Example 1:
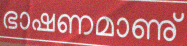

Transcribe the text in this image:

ഭാഷണമാണു്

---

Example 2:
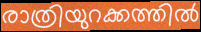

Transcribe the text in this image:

രാത്രിയുറക്കത്തിൽ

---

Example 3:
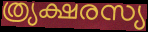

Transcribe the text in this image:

ത്ര്യക്ഷരസ്യ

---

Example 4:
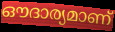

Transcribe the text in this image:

ഔദാര്യമാണ്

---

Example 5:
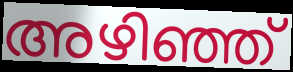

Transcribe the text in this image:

അഴിഞ്ഞ്